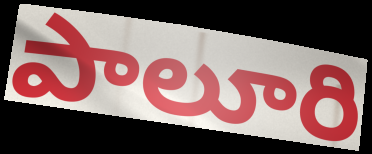
పాలూరి